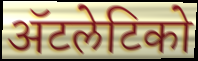
ॲटलेटिको